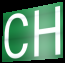
CH